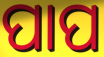
ପାପ